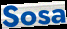
Sosa